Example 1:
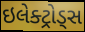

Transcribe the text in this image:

ઇલેક્ટ્રોડ્સ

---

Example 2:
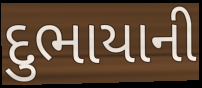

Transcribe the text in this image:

દુભાયાની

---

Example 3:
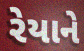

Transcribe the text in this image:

રેયાને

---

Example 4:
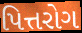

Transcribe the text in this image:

પિત્તરોગ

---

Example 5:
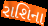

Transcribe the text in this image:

રાશિના